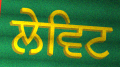
ਲੇਵਿਟ